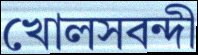
খোলসবন্দী